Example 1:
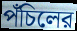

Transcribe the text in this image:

পঁচিলের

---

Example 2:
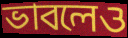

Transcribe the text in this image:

ভাবলেও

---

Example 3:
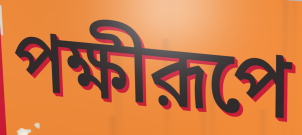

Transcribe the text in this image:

পক্ষীরূপে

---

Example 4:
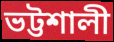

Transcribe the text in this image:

ভট্টশালী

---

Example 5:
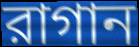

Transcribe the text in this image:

রাগান